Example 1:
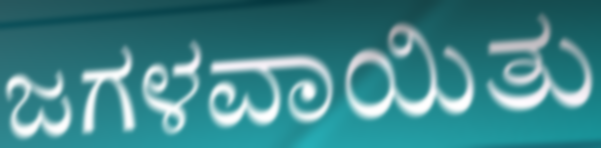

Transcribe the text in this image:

ಜಗಳವಾಯಿತು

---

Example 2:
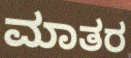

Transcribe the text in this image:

ಮಾತರ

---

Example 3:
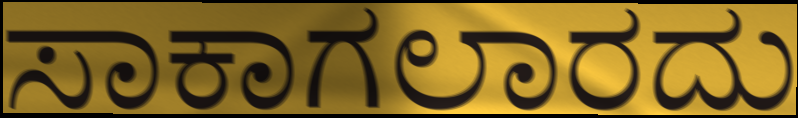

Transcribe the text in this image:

ಸಾಕಾಗಲಾರದು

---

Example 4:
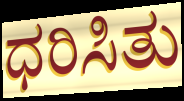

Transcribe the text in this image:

ಧರಿಸಿತು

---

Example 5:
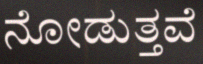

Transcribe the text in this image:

ನೋಡುತ್ತವೆ